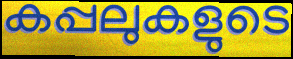
കപ്പലുകളുടെ